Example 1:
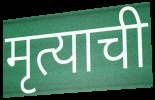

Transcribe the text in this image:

मृत्याची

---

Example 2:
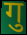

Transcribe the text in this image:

गु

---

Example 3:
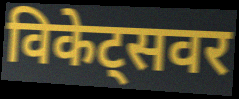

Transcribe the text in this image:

विकेट्सवर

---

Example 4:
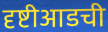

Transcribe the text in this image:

दृष्टीआडची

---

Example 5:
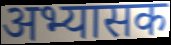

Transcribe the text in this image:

अभ्यासक